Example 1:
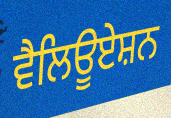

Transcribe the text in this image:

ਵੈਲਿਊਏਸ਼ਨ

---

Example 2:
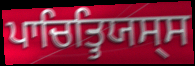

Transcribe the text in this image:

ਪਾਚਿਤ੍ਤਿਯਸ੍ਸ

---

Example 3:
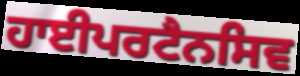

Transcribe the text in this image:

ਹਾਈਪਰਟੈਨਸਿਵ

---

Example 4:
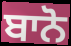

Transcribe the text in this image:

ਬਾਨੋ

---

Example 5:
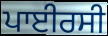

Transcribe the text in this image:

ਪਾਈਰਸੀ